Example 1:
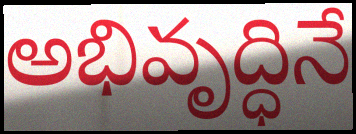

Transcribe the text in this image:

అభివృద్ధినే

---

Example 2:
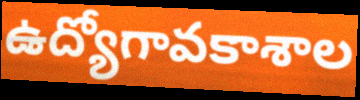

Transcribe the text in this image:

ఉద్యోగావకాశాల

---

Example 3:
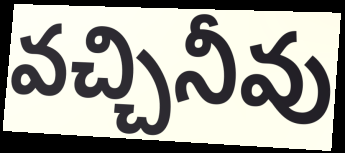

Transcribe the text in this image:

వచ్చినీవు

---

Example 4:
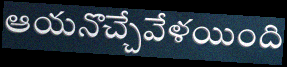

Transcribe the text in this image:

ఆయనొచ్చేవేళయింది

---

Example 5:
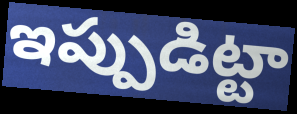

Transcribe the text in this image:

ఇప్పుడిట్టా